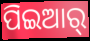
ପିଇଆର୍